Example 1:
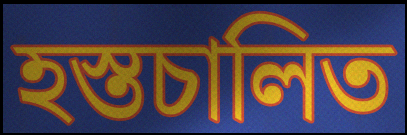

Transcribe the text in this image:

হস্তচালিত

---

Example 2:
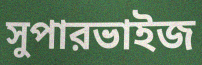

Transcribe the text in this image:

সুপারভাইজ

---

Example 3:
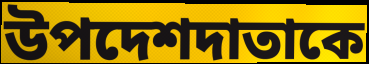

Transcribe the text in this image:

উপদেশদাতাকে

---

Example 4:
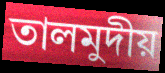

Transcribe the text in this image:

তালমুদীয়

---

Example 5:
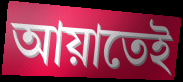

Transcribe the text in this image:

আয়াতেই